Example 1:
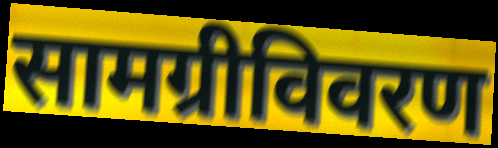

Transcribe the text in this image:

सामग्रीविवरण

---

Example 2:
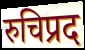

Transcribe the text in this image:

रुचिप्रद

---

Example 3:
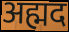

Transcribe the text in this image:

अह्मद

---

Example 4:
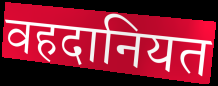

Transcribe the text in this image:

वहदानियत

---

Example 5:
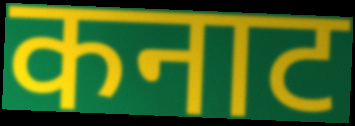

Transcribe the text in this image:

कनाट